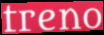
treno